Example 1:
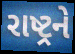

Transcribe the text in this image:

રાષ્ટ્રને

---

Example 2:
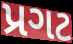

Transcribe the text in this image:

પ્રગટ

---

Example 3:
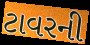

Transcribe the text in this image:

ટાવરની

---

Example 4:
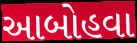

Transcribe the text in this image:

આબોહવા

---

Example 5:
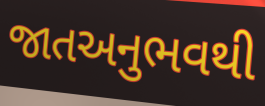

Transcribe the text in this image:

જાતઅનુભવથી